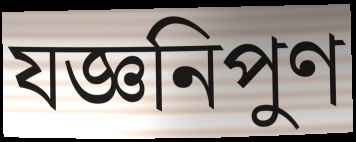
যজ্ঞনিপুণ